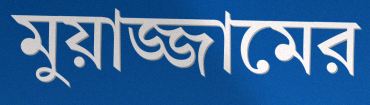
মুয়াজ্জামের